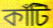
কাঁটি